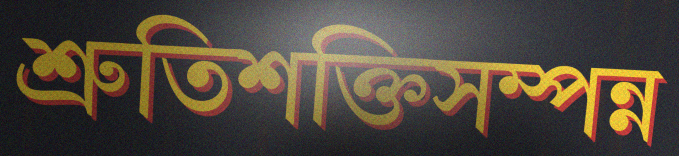
শ্রুতিশক্তিসম্পন্ন